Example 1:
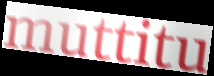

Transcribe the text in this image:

muttitu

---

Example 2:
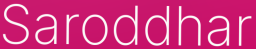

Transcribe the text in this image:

Saroddhar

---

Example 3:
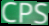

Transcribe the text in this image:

CPS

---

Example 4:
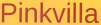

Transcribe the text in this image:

Pinkvilla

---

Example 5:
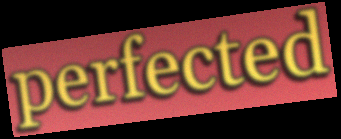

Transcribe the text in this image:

perfected